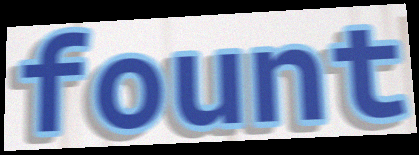
fount